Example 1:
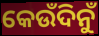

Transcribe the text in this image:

କେଉଁଦିନୁଁ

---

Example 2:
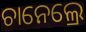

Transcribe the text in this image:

ଚାନେଲ୍ରେ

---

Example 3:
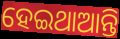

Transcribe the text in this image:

ହେଇଥାଆନ୍ତି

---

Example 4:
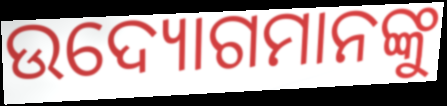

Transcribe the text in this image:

ଉଦ୍ୟୋଗମାନଙ୍କୁ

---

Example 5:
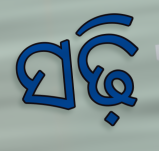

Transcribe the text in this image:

ସଢ଼ି